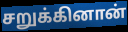
சறுக்கினான்